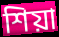
শিয়া